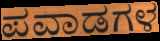
ಪವಾಡಗಳ